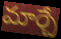
మార్చే